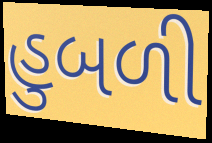
હુબળી